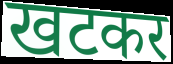
खटकर